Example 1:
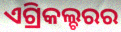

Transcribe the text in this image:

ଏଗ୍ରିକଲ୍ଚରର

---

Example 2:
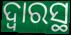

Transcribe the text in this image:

ଦ୍ବାରସ୍ଥ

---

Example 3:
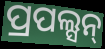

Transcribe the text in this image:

ପ୍ରପଲ୍ସନ୍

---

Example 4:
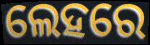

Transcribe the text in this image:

ଲେହରେ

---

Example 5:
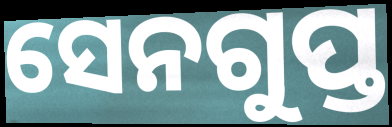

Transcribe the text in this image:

ସେନଗୁପ୍ତ